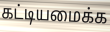
கட்டியமைக்க